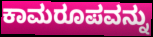
ಕಾಮರೂಪವನ್ನು